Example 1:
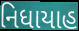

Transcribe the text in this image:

નિધાયાહ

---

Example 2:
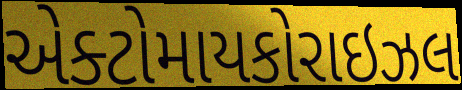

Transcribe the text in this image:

એક્ટોમાયકોરાઇઝલ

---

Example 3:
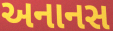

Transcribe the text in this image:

અનાનસ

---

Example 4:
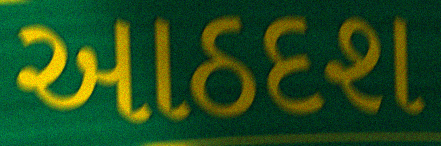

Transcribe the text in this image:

આઠદશ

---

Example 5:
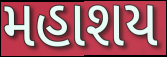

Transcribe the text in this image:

મહાશય